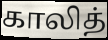
காலித்